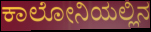
ಕಾಲೋನಿಯಲ್ಲಿನ